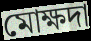
মোক্ষদা